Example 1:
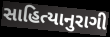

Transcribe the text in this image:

સાહિત્યાનુરાગી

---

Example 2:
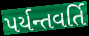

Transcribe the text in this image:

પર્યન્તવર્તિ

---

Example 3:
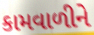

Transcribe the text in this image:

કામવાળીને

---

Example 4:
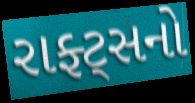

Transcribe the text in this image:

રાફ્ટ્સનો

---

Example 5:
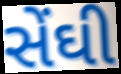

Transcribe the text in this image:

સેંઘી